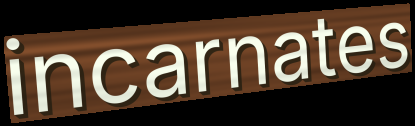
incarnates